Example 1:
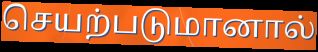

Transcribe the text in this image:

செயற்படுமானால்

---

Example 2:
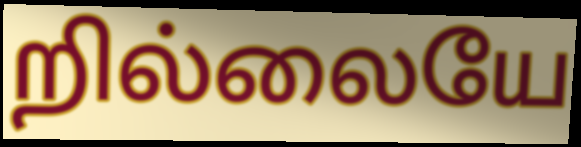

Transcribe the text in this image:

றில்லையே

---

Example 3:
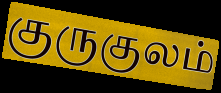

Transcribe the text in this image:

குருகுலம்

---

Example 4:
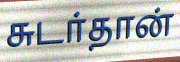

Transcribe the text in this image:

சுடர்தான்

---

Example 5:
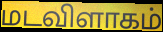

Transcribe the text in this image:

மடவிளாகம்